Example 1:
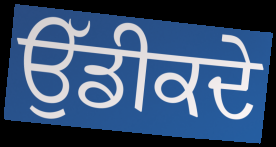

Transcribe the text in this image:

ਉੱਡੀਕਦੇ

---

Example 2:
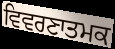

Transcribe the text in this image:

ਵਿਵਰਣਾਤਮਕ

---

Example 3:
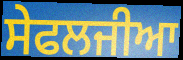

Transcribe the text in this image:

ਸੇਫਲਜੀਆ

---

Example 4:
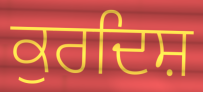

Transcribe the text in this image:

ਕੁਰਦਿਸ਼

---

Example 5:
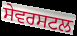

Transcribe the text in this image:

ਸੇਵਰਸਟਲ